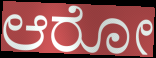
ಆರೋ